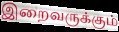
இறைவருக்கும்